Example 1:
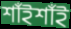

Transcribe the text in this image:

শাঁইশাঁই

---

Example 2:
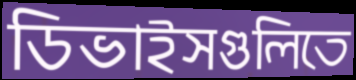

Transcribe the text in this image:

ডিভাইসগুলিতে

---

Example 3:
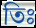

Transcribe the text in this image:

তিঃ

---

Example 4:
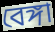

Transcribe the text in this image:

বেঙ্গা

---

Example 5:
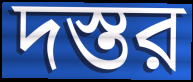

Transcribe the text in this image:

দস্তর